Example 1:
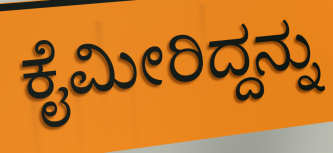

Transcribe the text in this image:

ಕೈಮೀರಿದ್ದನ್ನು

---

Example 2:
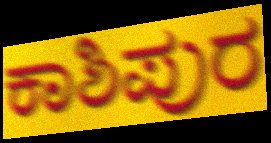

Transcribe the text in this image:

ಕಾಶಿಪುರ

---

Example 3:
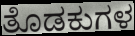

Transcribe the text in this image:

ತೊಡಕುಗಳ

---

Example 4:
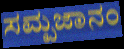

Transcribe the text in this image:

ಸಮ್ಪಜಾನಂ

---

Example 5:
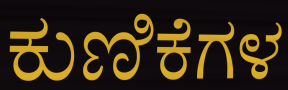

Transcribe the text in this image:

ಕುಣಿಕೆಗಳ